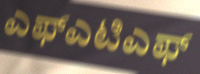
ಎಫ್ಎಟಿಎಫ್